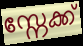
സ്നേക്ക്